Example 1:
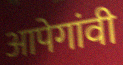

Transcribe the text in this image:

आपेगांवी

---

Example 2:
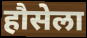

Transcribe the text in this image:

हौसेला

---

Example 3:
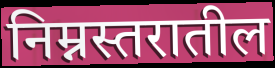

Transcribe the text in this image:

निम्नस्तरातील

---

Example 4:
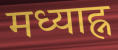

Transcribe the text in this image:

मध्याह्न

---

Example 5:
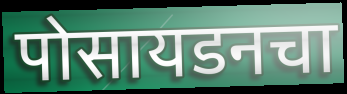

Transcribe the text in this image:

पोसायडनचा